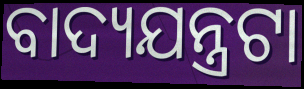
ବାଦ୍ୟଯନ୍ତ୍ରଟା